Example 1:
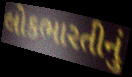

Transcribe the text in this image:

લોકભારતીનું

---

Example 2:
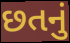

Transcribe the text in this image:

છતનું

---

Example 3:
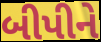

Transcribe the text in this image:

બીપીને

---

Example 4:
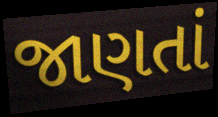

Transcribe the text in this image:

જાણતાં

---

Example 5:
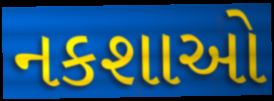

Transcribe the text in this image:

નકશાઓ